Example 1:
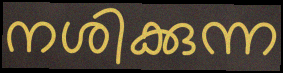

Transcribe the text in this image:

നശിക്കുന്ന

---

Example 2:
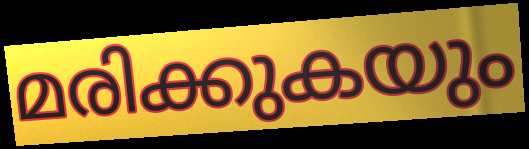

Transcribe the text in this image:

മരിക്കുകയും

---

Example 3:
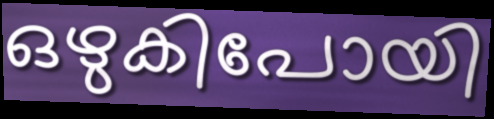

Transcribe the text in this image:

ഒഴുകിപോയി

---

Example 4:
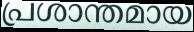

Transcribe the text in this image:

പ്രശാന്തമായ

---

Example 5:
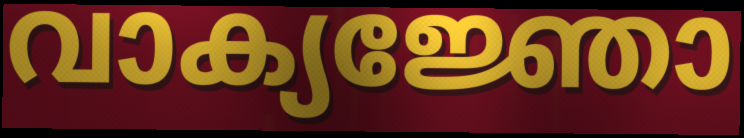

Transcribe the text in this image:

വാക്യജ്ഞോ